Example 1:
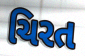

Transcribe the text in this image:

ચિરત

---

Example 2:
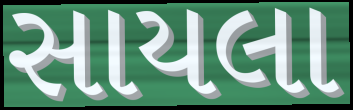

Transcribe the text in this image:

સાયલા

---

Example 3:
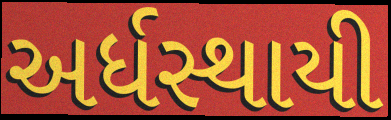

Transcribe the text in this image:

અર્ધસ્થાયી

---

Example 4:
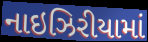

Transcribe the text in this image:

નાઇઝિરીયામાં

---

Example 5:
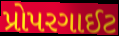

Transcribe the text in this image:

પ્રોપરગાઈટ